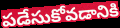
పడేసుకోవడానికి